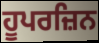
ਹੂਪਰਜ਼ਿਨ